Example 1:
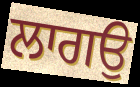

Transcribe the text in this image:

ਲਾਗਉ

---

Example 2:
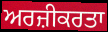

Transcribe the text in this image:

ਅਰਜ਼ੀਕਰਤਾ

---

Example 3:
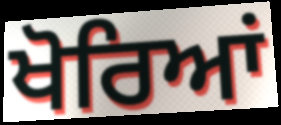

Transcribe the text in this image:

ਖੋਰਿਆਂ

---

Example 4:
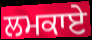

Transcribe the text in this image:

ਲਮਕਾਏ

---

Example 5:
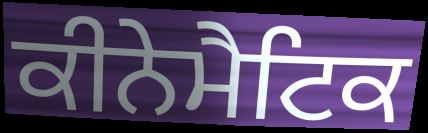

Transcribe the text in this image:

ਕੀਨੇਮੈਟਿਕ